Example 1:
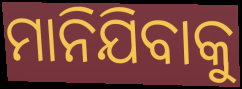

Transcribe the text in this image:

ମାନିଯିବାକୁ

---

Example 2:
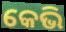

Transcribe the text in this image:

କେଭି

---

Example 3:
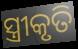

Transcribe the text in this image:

ସ୍ତ୍ରୀକୃତି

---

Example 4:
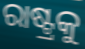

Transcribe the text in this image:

ରାଷ୍ଟ୍ରକୁ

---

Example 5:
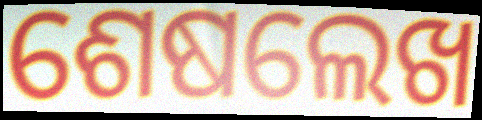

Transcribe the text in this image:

ଶେଷଲେଖ